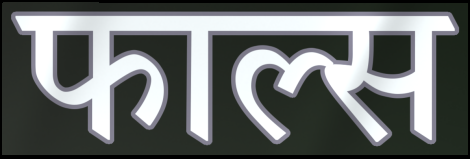
फाल्स